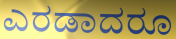
ಎರಡಾದರೂ